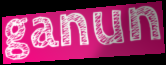
ganun